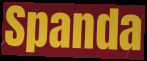
Spanda